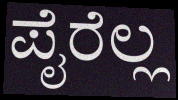
ಪೈರೆಲ್ಲ